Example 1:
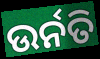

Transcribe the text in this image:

ଉର୍ନତି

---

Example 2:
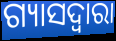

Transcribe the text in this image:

ଗ୍ୟାସଦ୍ଵାରା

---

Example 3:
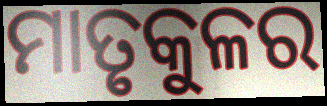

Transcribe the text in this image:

ମାତୃକୁଳର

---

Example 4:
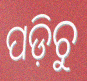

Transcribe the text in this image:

ପଡ଼ିଚୁ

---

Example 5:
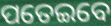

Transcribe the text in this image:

ପତେଇବେ